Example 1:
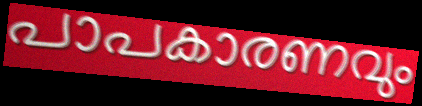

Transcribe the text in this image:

പാപകാരണവും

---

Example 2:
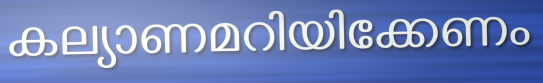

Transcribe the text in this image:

കല്യാണമറിയിക്കേണം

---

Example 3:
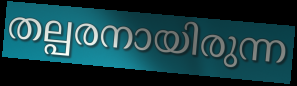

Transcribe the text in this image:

തല്പരനായിരുന്ന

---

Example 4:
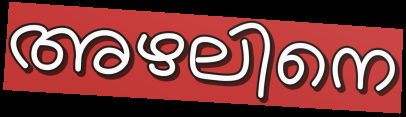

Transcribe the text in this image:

അഴലിനെ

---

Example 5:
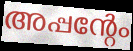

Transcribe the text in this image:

അപ്പന്റേം